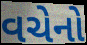
વચેનો